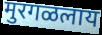
मुरगळलाय